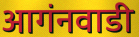
आगंनवाडी